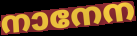
നാനേന